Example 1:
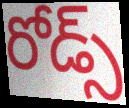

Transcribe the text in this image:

రోడ్స్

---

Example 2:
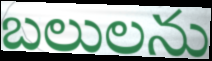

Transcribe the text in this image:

బలులను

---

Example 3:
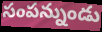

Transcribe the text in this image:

సంపన్నుండు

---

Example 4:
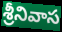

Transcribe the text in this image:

శ్రీనివాస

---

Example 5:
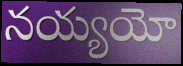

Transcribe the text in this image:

నయ్యయో